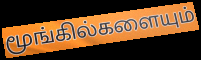
மூங்கில்களையும்